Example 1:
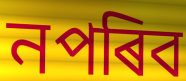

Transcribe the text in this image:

নপৰিব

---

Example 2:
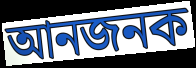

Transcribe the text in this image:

আনজনক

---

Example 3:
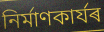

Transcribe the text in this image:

নিৰ্মাণকাৰ্যৰ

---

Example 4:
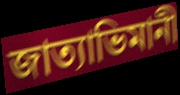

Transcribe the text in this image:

জাত্যাভিমানী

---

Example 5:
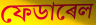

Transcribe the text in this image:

ফেডাৰেল